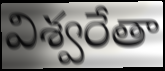
విశ్వరేతా